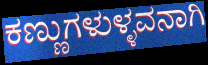
ಕಣ್ಣುಗಳುಳ್ಳವನಾಗಿ